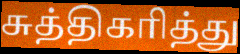
சுத்திகரித்து